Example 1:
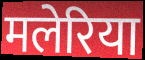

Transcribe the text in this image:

मलेरिया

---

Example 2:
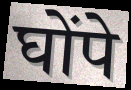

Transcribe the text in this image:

घोंपे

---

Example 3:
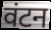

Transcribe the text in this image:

वंटन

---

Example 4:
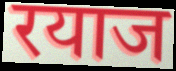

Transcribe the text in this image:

रयाज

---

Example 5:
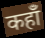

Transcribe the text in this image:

कहॉँ